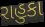
રાહુકા